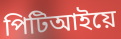
পিটিআইয়ে